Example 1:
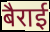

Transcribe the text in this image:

बैराई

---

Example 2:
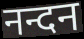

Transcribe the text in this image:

नन्‍दन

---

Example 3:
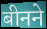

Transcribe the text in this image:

बीनने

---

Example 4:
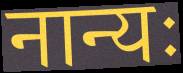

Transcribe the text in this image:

नान्यः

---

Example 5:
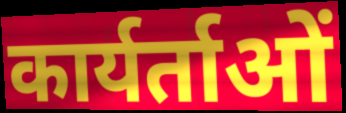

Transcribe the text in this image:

कार्यर्ताओं